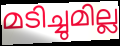
മടിച്ചുമില്ല